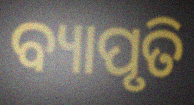
ବ୍ୟାପୃତି